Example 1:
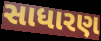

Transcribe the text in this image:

સાધારણ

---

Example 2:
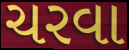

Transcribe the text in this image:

ચરવા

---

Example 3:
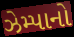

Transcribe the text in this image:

ઝેમ્પાનો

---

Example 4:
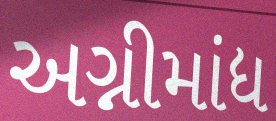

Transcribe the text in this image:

અગ્નીમાંદ્ય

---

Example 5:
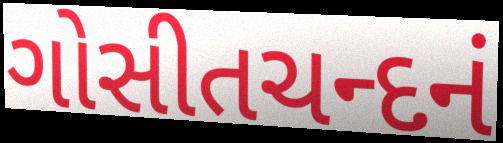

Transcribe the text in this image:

ગોસીતચન્દનં